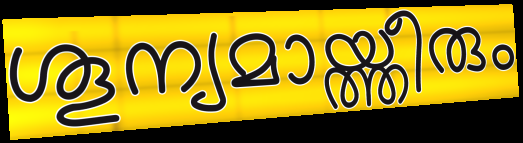
ശൂന്യമായ്ത്തീരും